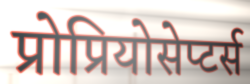
प्रोप्रियोसेप्टर्स